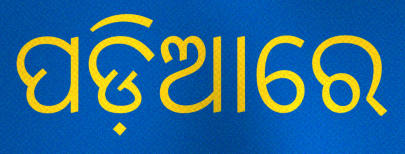
ପଡ଼ିଆରେ